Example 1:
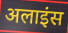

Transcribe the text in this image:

अलाइंस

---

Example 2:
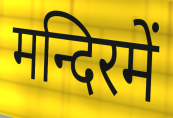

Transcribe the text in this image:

मन्दिरमें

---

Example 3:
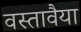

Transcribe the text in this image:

वस्तावैया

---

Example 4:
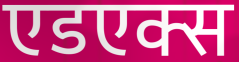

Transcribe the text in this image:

एडएक्स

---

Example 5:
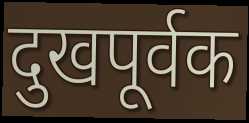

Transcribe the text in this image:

दुखपूर्वक